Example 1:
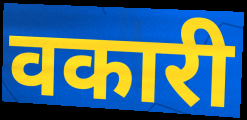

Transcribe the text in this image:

वकारी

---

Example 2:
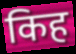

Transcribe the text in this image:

किह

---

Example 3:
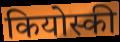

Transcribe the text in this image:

कियोस्की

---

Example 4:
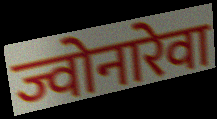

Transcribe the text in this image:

ज्वोनारेवा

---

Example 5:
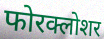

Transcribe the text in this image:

फोरक्लोशर